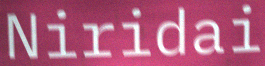
Niridai